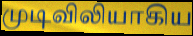
முடிவிலியாகிய